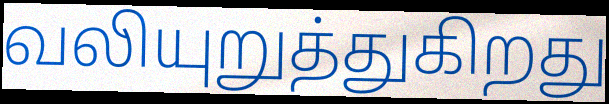
வலியுறுத்துகிறது